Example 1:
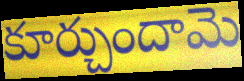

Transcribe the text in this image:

కూర్చుందామె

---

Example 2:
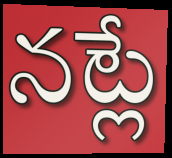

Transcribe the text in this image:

నట్లే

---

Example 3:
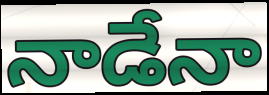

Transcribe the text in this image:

నాడేనా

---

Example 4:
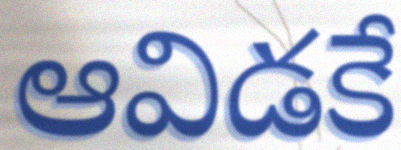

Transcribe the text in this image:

ఆవిడకే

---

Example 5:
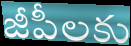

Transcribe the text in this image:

జీపీలకు